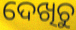
ଦେଖିଚୁ